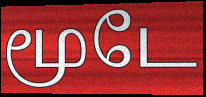
மூடே